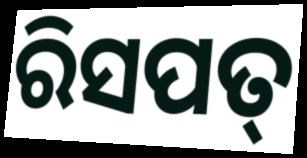
ରିସପତ୍